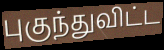
புகுந்துவிட்ட